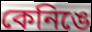
কেনিঙে